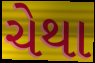
ચેથા